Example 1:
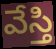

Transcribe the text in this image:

వేస్తి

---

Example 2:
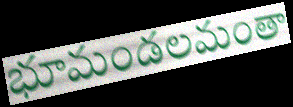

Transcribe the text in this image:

భూమండలమంతా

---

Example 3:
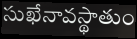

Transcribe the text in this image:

సుఖేనావస్థాతుం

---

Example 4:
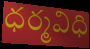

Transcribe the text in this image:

ధర్మవిధి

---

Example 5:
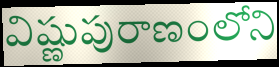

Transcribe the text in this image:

విష్ణుపురాణంలోని